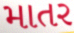
માતર